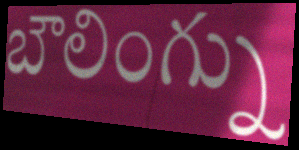
బౌలింగ్ను